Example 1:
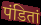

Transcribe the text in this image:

पंडितां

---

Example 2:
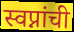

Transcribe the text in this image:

स्वप्नांची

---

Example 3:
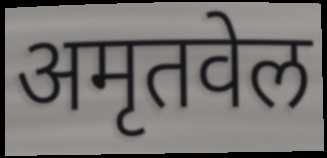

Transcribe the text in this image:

अमृतवेल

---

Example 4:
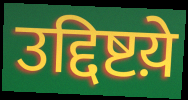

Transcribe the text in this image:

उद्दिष्टय़े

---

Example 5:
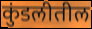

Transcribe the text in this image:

कुंडलीतील